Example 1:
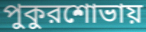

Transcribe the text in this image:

পুকুরশোভায়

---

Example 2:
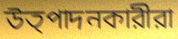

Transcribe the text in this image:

উত্পাদনকারীরা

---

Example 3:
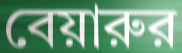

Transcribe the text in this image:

বেয়ারুর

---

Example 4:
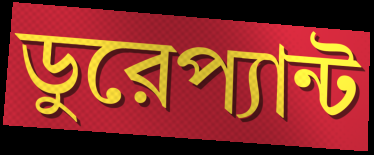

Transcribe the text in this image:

ডুরেপ্যান্ট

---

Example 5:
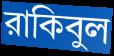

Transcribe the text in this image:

রাকিবুল